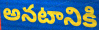
అనటానికి